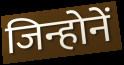
जिन्होनें